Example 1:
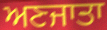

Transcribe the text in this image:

ਅਣਜਾਤਾ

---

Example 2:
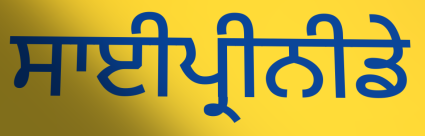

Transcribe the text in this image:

ਸਾਈਪ੍ਰੀਨੀਡੇ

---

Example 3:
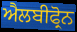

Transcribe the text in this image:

ਐਲਬੀਫ੍ਰੋਨ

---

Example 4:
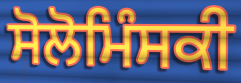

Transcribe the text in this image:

ਸੋਲੋਮਿੰਸਕੀ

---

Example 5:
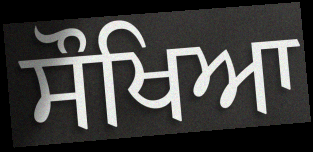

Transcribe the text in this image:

ਸੌਖਿਆ